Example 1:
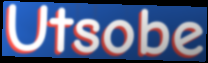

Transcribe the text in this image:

Utsobe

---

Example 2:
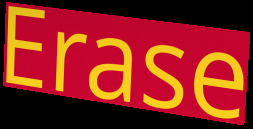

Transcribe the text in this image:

Erase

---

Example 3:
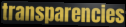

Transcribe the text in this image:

transparencies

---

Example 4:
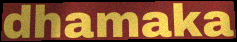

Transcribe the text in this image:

dhamaka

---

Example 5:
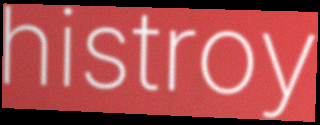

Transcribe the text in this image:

histroy